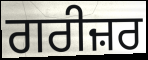
ਗਰੀਜ਼ਰ